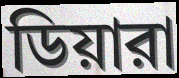
ডিয়ারা